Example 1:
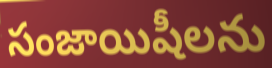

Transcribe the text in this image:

సంజాయిషీలను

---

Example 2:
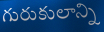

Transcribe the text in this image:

గురుకులాన్ని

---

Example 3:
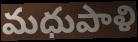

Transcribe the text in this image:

మధుపాళి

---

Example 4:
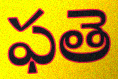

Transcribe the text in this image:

ఫతె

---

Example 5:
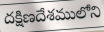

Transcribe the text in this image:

దక్షిణదేశములోని